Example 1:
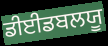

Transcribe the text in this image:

ਡੀਈਡਬਲਯੂ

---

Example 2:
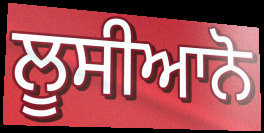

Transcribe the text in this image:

ਲੂਸੀਆਨੋ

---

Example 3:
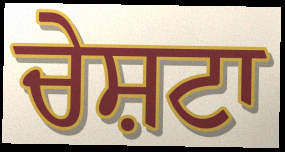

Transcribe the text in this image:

ਚੇਸ਼ਟਾ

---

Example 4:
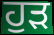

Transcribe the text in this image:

ਹੁੜ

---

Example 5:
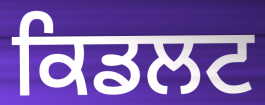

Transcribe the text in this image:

ਕਿਡਲਟ